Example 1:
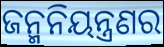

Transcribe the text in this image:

ଜନ୍ମନିୟନ୍ତ୍ରଣର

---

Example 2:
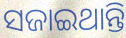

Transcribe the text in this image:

ସଜାଇଥାନ୍ତି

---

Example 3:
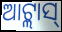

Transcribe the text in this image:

ଆଟ୍ଲାସ୍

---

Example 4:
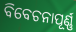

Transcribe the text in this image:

ବିବେଚନାପୂର୍ଣ୍ଣ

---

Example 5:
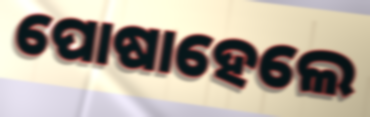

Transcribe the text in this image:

ପୋଷାହେଲେ